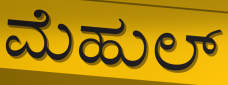
ಮೆಹುಲ್